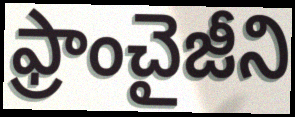
ఫ్రాంచైజీని